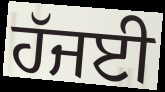
ਹੱਜਈ